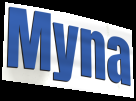
Myna